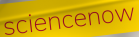
sciencenow